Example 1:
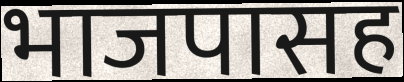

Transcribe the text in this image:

भाजपासह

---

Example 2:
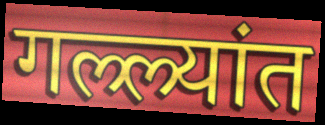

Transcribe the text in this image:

गल्ल्यांत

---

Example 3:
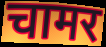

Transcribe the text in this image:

चामर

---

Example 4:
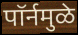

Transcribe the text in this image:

पॉर्नमुळे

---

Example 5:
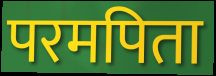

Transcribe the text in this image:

परमपिता